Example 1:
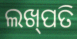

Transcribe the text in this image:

ଲଖ୍‌ପତି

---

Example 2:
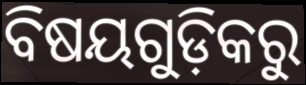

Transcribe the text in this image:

ବିଷୟଗୁଡ଼ିକରୁ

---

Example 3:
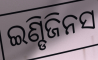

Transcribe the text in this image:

ଇଣ୍ଡିଜିନସ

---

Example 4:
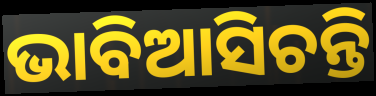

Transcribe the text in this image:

ଭାବିଆସିଚନ୍ତି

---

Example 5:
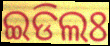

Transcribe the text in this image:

ଇଡିଲଃ